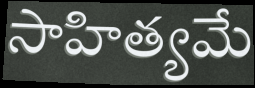
సాహిత్యమే